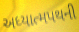
અધ્યાત્મપથની